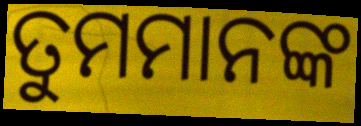
ତୁମମାନଙ୍କ